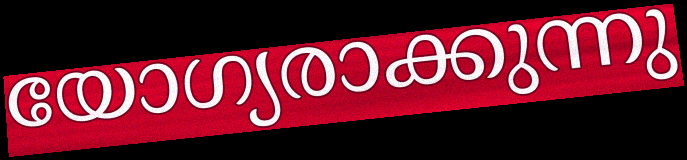
യോഗ്യരാക്കുന്നു